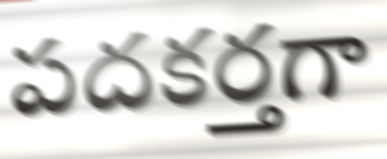
పదకర్తగా